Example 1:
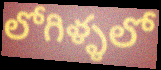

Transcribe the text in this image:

లోగిళ్ళలో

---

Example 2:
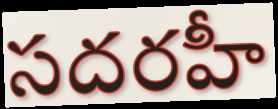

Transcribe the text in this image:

సదరహీ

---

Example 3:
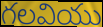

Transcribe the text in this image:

గలవియు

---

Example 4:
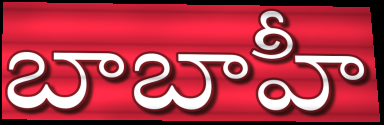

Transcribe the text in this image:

బాబాహీ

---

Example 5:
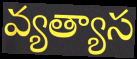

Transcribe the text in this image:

వ్యత్యాస